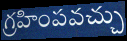
గ్రహింపవచ్చు